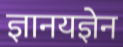
ज्ञानयज्ञेन